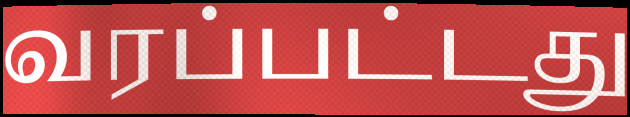
வரப்பட்டது